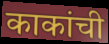
काकांची